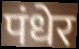
पंधेर